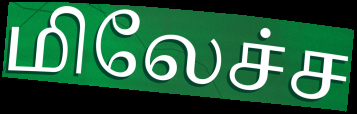
மிலேச்ச